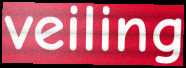
veiling